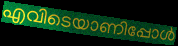
എവിടെയാണിപ്പോൾ